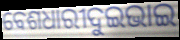
ବେଶଧାରୀଦୁଇଭାଇ